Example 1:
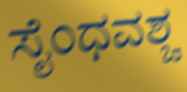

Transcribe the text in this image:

ಸೈಂಧವಶ್ಚ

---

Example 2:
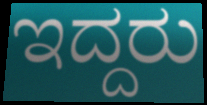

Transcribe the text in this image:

ಇದ್ದರು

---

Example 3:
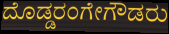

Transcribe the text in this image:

ದೊಡ್ಡರಂಗೇಗೌಡರು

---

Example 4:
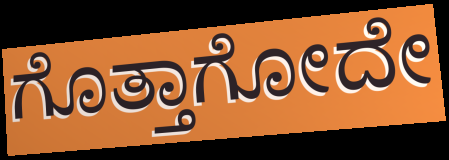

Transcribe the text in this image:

ಗೊತ್ತಾಗೋದೇ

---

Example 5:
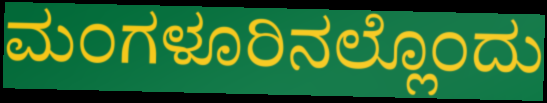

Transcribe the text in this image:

ಮಂಗಳೂರಿನಲ್ಲೊಂದು